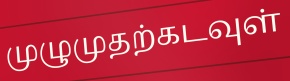
முழுமுதற்கடவுள்